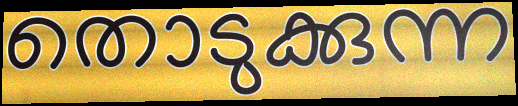
തൊടുക്കുന്ന